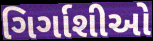
ગિર્ગાશીઓ